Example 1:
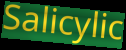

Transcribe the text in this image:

Salicylic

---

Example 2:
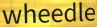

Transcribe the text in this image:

wheedle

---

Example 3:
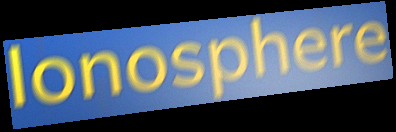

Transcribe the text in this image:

Ionosphere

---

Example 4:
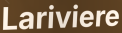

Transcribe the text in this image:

Lariviere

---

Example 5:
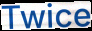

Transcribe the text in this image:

Twice